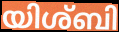
യിശ്ബി